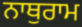
ਨਾਥੁਰਾਮ